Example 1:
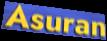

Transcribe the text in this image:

Asuran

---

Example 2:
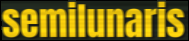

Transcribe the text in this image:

semilunaris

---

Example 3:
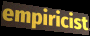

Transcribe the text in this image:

empiricist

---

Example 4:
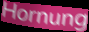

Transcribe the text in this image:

Hornung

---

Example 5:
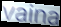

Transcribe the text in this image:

vaina